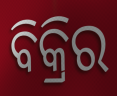
ବିକ୍ରିର